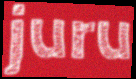
juru